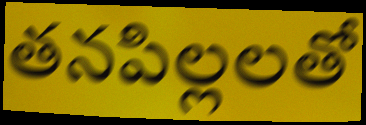
తనపిల్లలతో